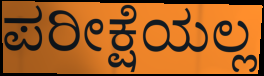
ಪರೀಕ್ಷೆಯಲ್ಲ